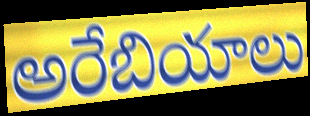
అరేబియాలు